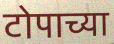
टोपाच्या